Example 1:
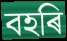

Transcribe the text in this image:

বহৰি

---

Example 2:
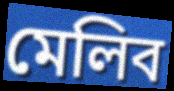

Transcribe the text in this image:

মেলিব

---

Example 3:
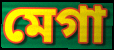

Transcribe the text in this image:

মেগা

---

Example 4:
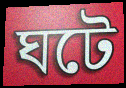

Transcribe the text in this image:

ঘটে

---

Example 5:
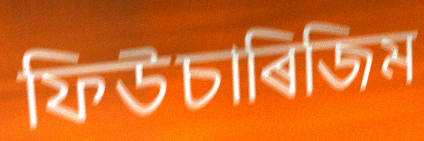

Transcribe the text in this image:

ফিউচাৰিজিম